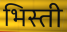
भिस्ती